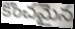
కొంచమైన